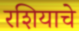
रशियाचे